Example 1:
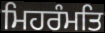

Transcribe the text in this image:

ਮਿਹਰੰਮਤਿ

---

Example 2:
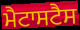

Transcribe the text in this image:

ਮੈਟਾਸਟੈਸ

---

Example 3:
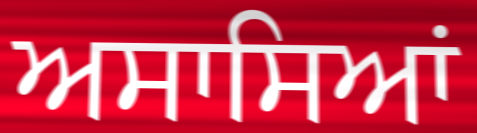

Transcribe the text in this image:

ਅਸਾਸਿਆਂ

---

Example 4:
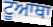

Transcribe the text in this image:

ਟੂਆਥਾ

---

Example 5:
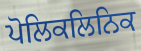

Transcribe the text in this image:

ਪੋਲਿਕਲਿਨਿਕ